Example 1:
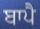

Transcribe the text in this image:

ਬਾਪੈ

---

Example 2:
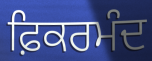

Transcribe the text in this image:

ਫ਼ਿਕਰਮੰਦ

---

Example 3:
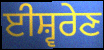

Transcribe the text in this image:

ਈਸ਼੍ਵਰੇਣ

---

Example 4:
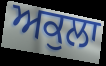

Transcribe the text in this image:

ਅਕੁਲਾ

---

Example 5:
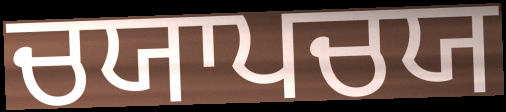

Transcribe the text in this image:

ਚਯਾਪਚਯ